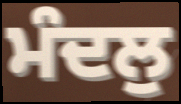
ਮੰਦਲੁ